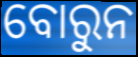
ବୋରୁନ